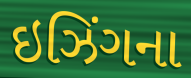
ઇઝિંગના